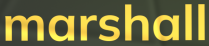
marshall